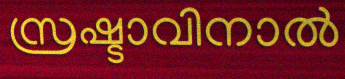
സ്രഷ്ടാവിനാൽ